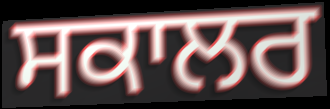
ਸਕਾਲਰ